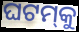
ଘଟମ୍‌କୁ